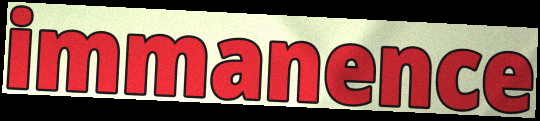
immanence